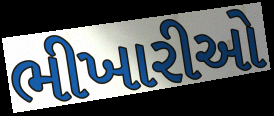
ભીખારીઓ